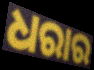
ଧରାର